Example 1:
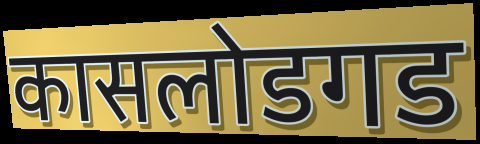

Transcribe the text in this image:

कासलोडगड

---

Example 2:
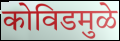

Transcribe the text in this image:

कोविडमुळे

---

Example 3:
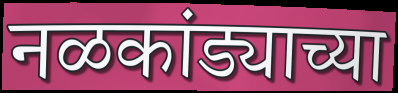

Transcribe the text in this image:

नळकांड्याच्या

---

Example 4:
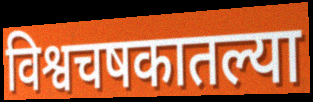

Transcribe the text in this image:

विश्वचषकातल्या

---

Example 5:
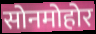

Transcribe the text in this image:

सोनमोहोर